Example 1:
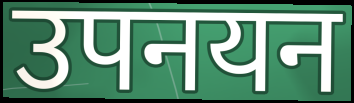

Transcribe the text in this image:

उपनयन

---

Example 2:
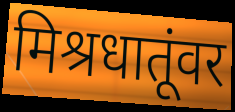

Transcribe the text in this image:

मिश्रधातूंवर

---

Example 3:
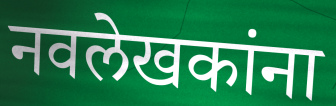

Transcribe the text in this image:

नवलेखकांना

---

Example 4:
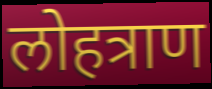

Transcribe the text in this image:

लोहत्राण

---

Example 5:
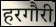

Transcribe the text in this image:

हरगौरी